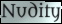
Nudity